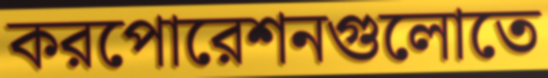
করপোরেশনগুলোতে